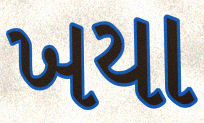
ખયા